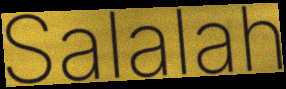
Salalah